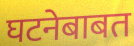
घटनेबाबत